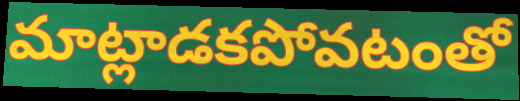
మాట్లాడకపోవటంతో